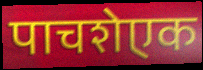
पाचशेएक